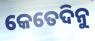
କେତେଦିନୁ